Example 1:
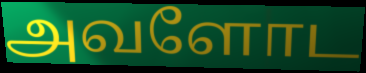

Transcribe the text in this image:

அவளோட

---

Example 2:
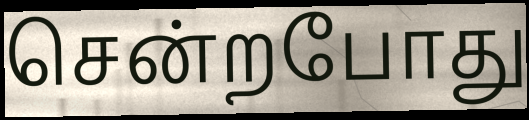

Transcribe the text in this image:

சென்றபோது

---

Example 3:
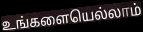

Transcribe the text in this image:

உங்களையெல்லாம்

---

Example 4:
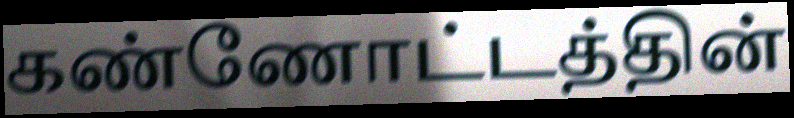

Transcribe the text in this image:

கண்ணோட்டத்தின்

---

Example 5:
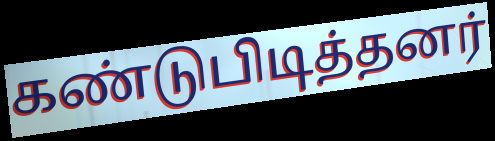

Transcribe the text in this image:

கண்டுபிடித்தனர்